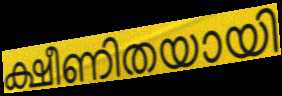
ക്ഷീണിതയായി